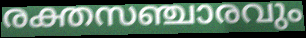
രക്തസഞ്ചാരവും